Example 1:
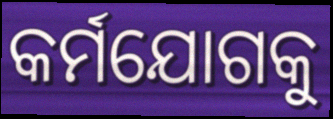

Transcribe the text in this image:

କର୍ମଯୋଗକୁ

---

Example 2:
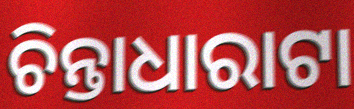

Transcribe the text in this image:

ଚିନ୍ତାଧାରାଟା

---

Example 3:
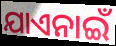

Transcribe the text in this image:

ଯାଏନାଇଁ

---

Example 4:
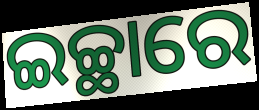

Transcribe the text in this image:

ଇଚ୍ଛାରେ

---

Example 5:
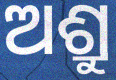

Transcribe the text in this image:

ଅଶ୍ରୁ